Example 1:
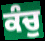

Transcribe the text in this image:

ਕੰਚੁ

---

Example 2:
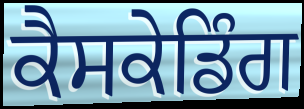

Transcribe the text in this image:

ਕੈਸਕੇਡਿੰਗ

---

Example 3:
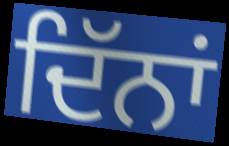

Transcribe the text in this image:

ਦਿੱਨਾਂ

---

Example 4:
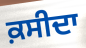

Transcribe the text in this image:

ਕ਼ਸੀਦਾ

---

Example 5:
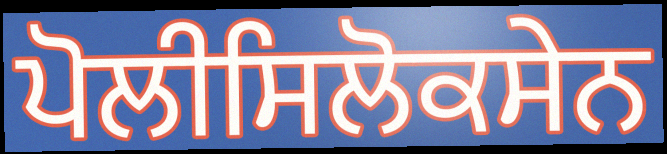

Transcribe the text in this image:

ਪੋਲੀਸਿਲੋਕਸੇਨ